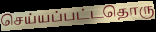
செய்யப்பட்டதொரு